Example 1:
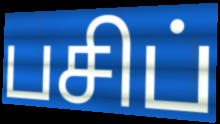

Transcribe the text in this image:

பசிப்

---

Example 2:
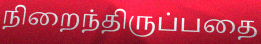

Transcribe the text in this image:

நிறைந்திருப்பதை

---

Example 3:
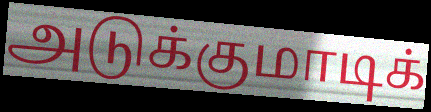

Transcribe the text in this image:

அடுக்குமாடிக்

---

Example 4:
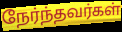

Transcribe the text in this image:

நேர்ந்தவர்கள்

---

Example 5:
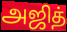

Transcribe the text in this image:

அஜித்